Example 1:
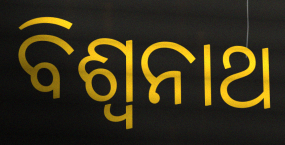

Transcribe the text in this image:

ବିଶ୍ୱନାଥ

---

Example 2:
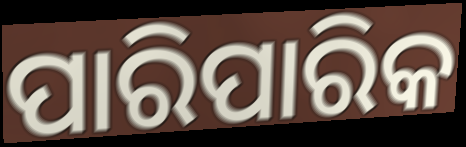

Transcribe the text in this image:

ପାରିପାରିକ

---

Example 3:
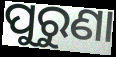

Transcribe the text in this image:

ପୁରୁଣା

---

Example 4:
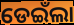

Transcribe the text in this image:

ଡେଇଁଲା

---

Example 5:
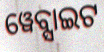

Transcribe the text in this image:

ୱେବ୍ସାଇଟ